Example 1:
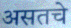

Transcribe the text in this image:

असतचे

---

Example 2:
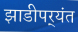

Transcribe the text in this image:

झाडीपर्यंत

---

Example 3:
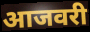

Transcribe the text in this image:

आजवरी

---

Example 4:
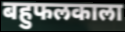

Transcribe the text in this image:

बहुफलकाला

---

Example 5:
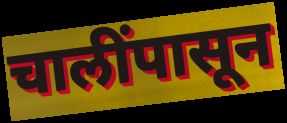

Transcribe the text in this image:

चालींपासून